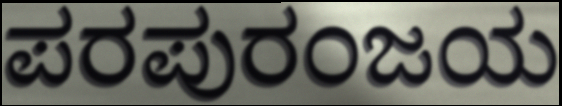
ಪರಪುರಂಜಯ